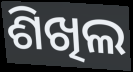
ଶିଖିଲ